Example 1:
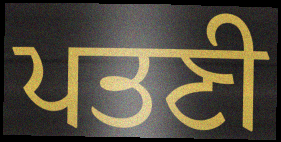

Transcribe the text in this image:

ਪਤਣੀ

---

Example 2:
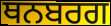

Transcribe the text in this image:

ਥਨਬਰਗ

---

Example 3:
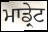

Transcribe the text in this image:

ਮਾਡ੍ਰੇਟ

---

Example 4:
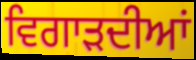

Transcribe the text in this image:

ਵਿਗਾੜਦੀਆਂ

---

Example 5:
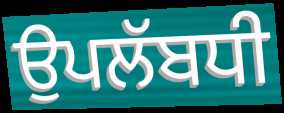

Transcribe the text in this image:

ਉਪਲੱਬਧੀ